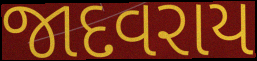
જાદવરાય